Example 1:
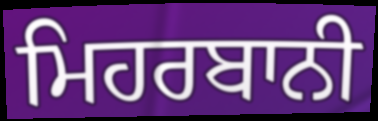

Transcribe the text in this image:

ਮਿਹਰਬਾਨੀ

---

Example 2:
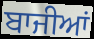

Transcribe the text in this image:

ਬਾਜੀਆਂ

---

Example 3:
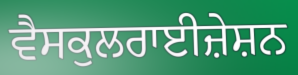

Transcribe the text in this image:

ਵੈਸਕੁਲਰਾਈਜ਼ੇਸ਼ਨ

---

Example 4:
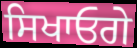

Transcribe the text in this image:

ਸਿਖਾਓਗੇ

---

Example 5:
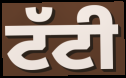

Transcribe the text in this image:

ਟੱਟੀ